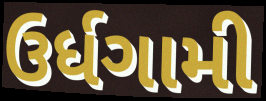
ઉર્ધગામી